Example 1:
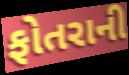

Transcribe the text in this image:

ફોતરાની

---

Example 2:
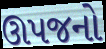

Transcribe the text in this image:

ઊપજનો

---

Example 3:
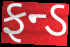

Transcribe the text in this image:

ફન્ડ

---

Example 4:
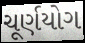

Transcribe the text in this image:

ચૂર્ણયોગ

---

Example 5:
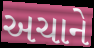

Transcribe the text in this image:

અચાને